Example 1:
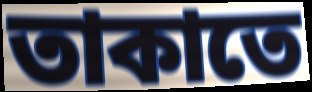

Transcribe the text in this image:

তাকাতে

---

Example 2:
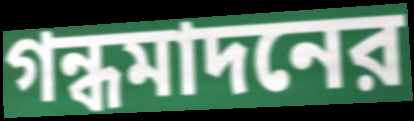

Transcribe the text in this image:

গন্ধমাদনের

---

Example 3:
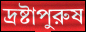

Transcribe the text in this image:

দ্রষ্টাপুরুষ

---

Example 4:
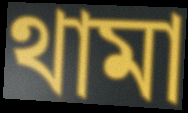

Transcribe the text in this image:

থামা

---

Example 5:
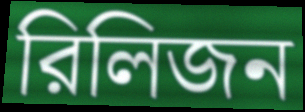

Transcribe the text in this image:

রিলিজন